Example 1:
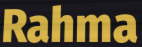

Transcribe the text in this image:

Rahma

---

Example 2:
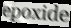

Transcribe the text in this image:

epoxide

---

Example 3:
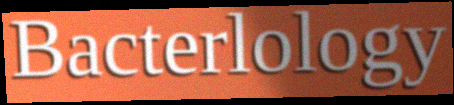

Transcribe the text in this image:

Bacterlology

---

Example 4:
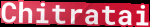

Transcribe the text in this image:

Chitratai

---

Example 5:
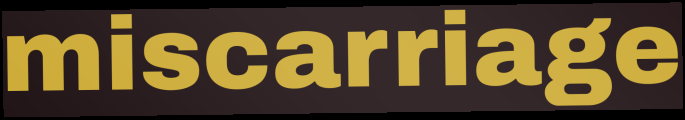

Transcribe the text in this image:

miscarriage